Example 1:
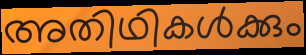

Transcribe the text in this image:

അതിഥികൾക്കും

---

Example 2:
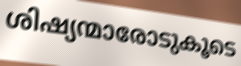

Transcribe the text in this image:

ശിഷ്യന്മാരോടുകൂടെ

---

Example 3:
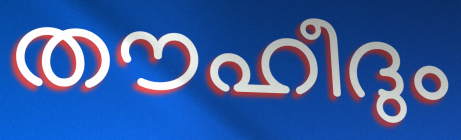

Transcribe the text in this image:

തൗഹീദും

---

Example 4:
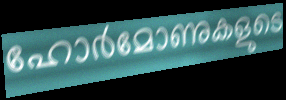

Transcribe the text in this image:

ഹോർമോണുകളുടെ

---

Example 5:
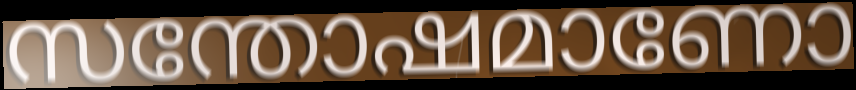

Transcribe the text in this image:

സന്തോഷമാണോ